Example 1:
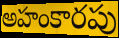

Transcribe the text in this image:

అహంకారపు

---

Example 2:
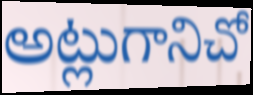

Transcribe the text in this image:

అట్లుగానిచో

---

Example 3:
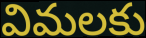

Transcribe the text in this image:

విమలకు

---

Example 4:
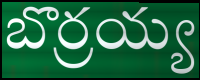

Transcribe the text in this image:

బొర్రయ్య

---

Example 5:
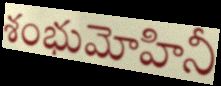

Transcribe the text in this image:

శంభుమోహినీ